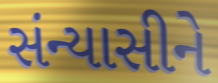
સંન્યાસીને